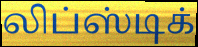
லிப்ஸ்டிக்